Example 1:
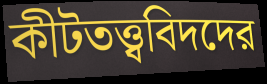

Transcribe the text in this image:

কীটতত্ত্ববিদদের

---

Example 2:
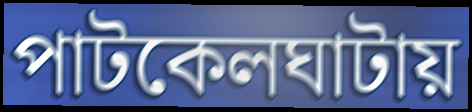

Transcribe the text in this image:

পাটকেলঘাটায়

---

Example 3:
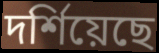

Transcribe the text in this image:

দর্শিয়েছে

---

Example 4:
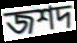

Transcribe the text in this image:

জশদ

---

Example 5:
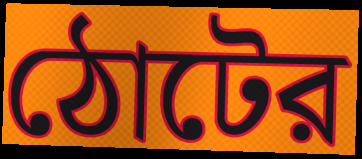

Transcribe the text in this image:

ঠোটের